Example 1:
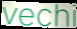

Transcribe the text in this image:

vechi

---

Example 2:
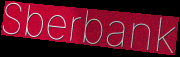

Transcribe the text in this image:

Sberbank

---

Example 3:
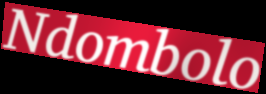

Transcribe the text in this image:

Ndombolo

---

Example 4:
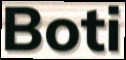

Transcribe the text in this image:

Boti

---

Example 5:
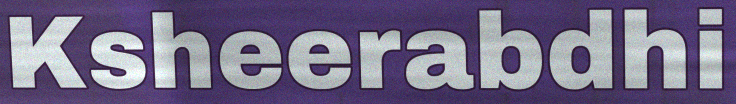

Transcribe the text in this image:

Ksheerabdhi